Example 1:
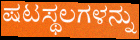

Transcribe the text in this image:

ಷಟಸ್ಥಲಗಳನ್ನು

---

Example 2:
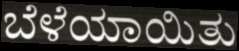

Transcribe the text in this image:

ಬೆಳೆಯಾಯಿತು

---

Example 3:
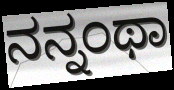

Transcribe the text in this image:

ನನ್ನಂಥಾ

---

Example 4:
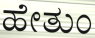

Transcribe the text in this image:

ಹೇತುಂ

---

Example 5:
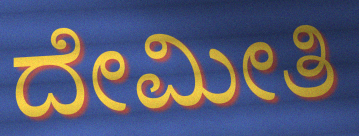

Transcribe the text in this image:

ದೇಮೀತಿ